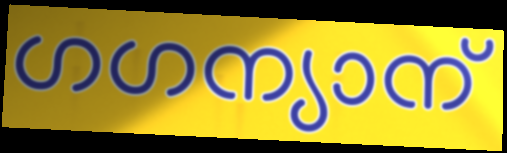
ഗഗന്യാന്